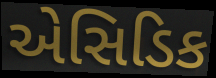
એસિડિક